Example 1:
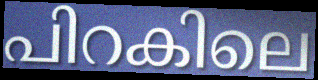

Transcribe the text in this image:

പിറകിലെ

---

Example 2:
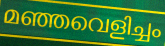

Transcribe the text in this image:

മഞ്ഞവെളിച്ചം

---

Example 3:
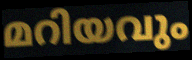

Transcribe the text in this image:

മറിയവും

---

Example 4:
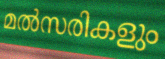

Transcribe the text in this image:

മൽസരികളും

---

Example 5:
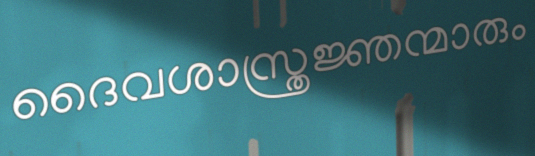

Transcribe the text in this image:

ദൈവശാസ്ത്രജ്ഞന്മാരും